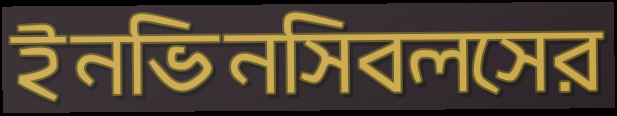
ইনভিনসিবলসের